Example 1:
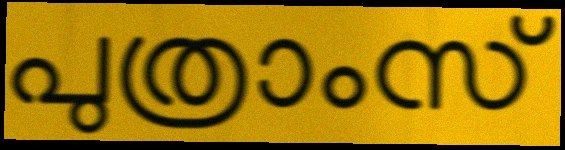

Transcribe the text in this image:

പുത്രാംസ്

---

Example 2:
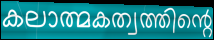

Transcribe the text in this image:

കലാത്മകത്വത്തിന്റെ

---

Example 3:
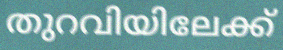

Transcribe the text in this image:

തുറവിയിലേക്ക്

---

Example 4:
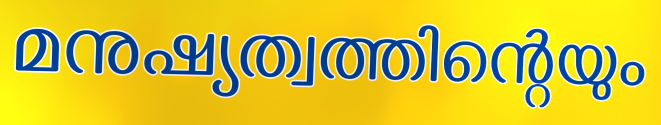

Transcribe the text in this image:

മനുഷ്യത്വത്തിന്റെയും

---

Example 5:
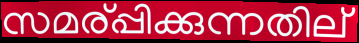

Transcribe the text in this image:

സമര്പ്പിക്കുന്നതില്